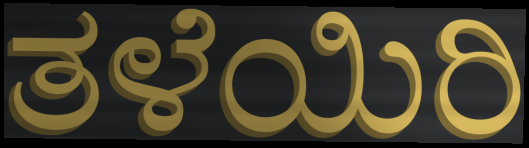
ತಳೆಯಿರಿ